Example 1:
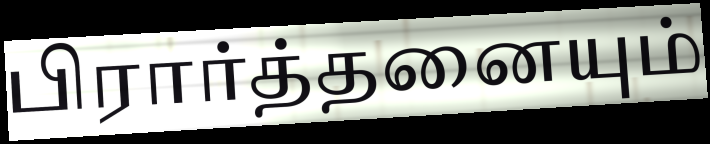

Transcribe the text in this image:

பிரார்த்தனையும்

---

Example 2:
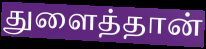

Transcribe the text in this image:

துளைத்தான்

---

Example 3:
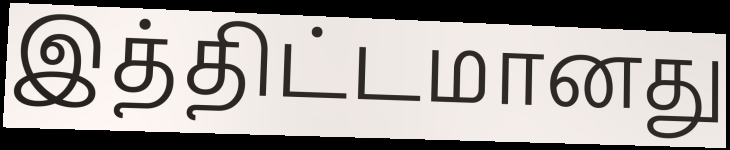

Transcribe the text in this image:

இத்திட்டமானது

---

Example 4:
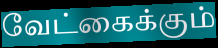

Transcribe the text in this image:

வேட்கைக்கும்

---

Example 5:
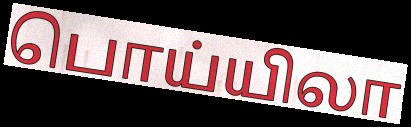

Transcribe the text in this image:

பொய்யிலா